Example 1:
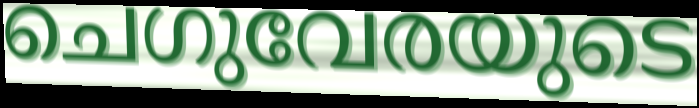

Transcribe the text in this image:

ചെഗുവേരയുടെ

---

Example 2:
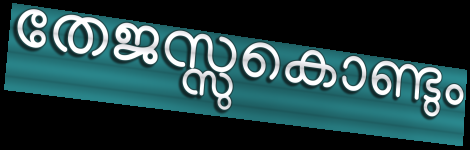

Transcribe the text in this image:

തേജസ്സുകൊണ്ടും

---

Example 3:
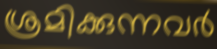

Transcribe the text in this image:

ശ്രമിക്കുന്നവർ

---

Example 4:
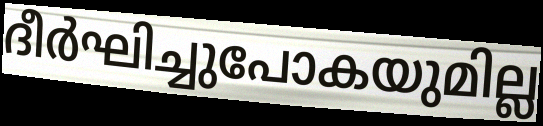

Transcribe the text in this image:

ദീർഘിച്ചുപോകയുമില്ല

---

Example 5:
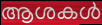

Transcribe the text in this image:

ആശകൾ